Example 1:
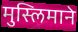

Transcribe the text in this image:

मुस्लिमाने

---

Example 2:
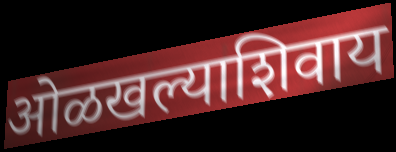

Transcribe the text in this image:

ओळखल्याशिवाय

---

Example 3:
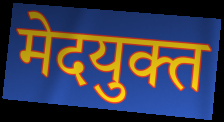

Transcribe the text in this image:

मेदयुक्त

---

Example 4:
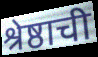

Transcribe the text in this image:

श्रेष्ठाची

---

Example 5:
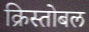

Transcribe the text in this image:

क्रिस्तोबल